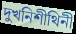
দুখনিশীথিনী